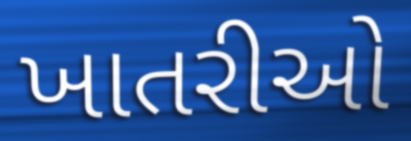
ખાતરીઓ